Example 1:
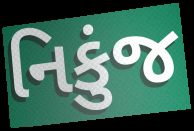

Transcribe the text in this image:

નિકુંજ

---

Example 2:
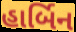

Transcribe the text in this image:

હાર્બિન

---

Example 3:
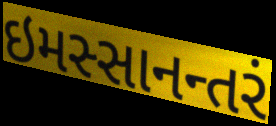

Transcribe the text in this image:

ઇમસ્સાનન્તરં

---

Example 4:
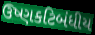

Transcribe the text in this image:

ઉષ્ણકટિબંધીય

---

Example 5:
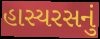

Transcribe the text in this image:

હાસ્યરસનું